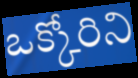
ఒక్కోరిని